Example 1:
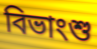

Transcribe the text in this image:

বিভাংশু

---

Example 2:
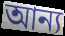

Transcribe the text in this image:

আন্য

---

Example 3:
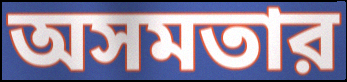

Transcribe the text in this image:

অসমতার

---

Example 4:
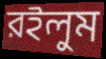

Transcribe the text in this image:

রইলুম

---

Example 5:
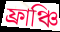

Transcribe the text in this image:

ফ্রাঞ্চি